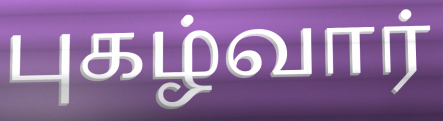
புகழ்வார்